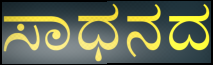
ಸಾಧನದ